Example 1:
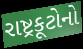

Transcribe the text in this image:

રાષ્ટ્રકૂટોનો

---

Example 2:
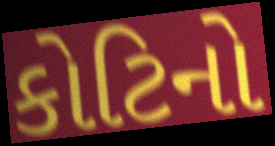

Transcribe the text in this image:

કોટિનો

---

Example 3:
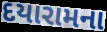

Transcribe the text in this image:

દયારામના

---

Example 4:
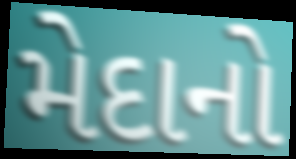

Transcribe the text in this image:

મેદાનો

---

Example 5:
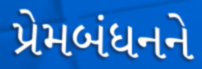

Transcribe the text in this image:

પ્રેમબંધનને